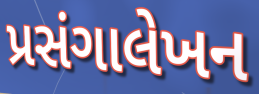
પ્રસંગાલેખન